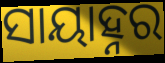
ସାୟାହ୍ନର